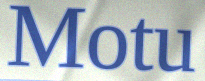
Motu